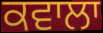
ਕਵਾਲਾ